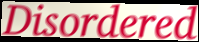
Disordered